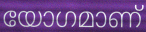
യോഗമാണ്